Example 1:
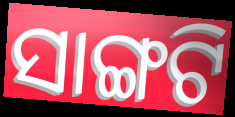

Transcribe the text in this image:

ସାଙ୍ଗଟି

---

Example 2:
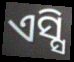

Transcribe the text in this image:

ଏସ୍ସି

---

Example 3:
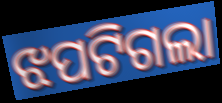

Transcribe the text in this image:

ଝପଟିଗଲା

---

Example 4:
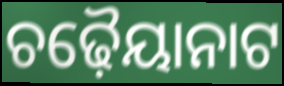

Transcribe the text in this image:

ଚଢ଼ୈୟାନାଟ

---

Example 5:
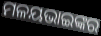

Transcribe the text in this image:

ମଳୟଭାଇଙ୍କର